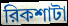
রিকশাটা